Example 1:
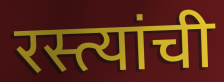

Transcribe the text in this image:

रस्त्यांची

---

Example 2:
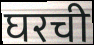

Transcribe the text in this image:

घरची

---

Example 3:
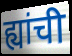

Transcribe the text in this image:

ह्यांची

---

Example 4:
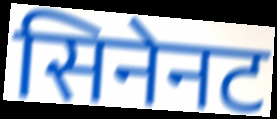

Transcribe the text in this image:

सिनेनट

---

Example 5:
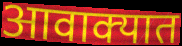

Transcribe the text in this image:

आवाक्‍यात